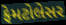
ફેમટોલેસર